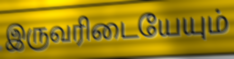
இருவரிடையேயும்